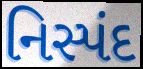
નિસ્પંદ